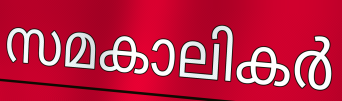
സമകാലികർ